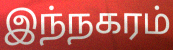
இந்நகரம்